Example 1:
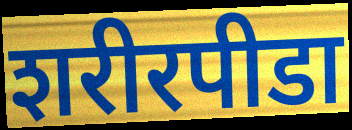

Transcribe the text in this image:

शरीरपीडा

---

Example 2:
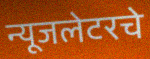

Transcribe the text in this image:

न्यूजलेटरचे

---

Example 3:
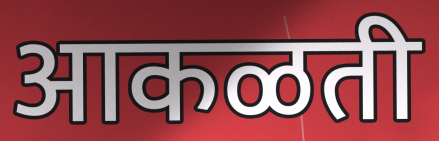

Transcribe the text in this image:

आकळती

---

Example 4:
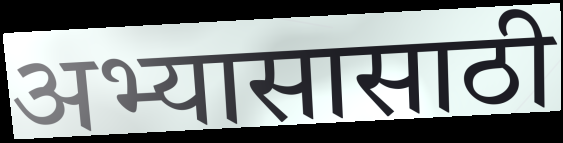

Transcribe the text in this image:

अभ्यासासाठी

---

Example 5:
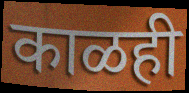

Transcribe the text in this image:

काळही